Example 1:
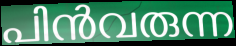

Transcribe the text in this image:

പിൻവരുന്ന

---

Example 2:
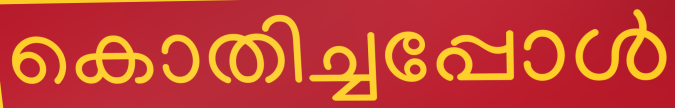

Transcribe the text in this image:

കൊതിച്ചപ്പോൾ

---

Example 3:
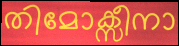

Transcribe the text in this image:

തിമോക്സീനാ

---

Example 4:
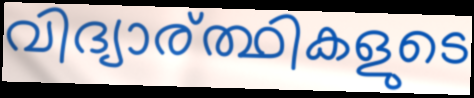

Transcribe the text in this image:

വിദ്യാര്ത്ഥികളുടെ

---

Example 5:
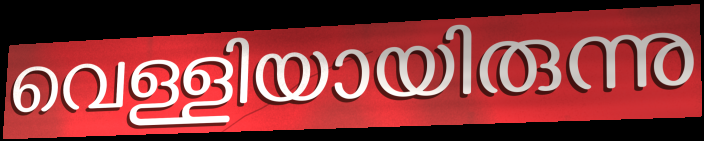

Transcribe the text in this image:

വെള്ളിയായിരുന്നു